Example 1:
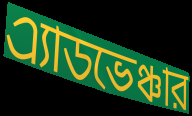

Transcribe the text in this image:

এ্যাডভেঞ্চার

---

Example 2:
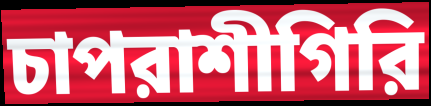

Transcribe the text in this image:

চাপরাশীগিরি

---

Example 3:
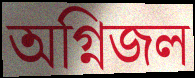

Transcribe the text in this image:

অগ্নিজল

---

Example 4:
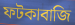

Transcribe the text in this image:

ফটকাবাজি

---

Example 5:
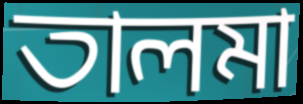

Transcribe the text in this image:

তালমা